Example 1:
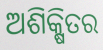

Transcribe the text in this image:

ଅଶିକ୍ଷିତର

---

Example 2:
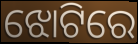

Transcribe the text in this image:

ଝୋଟିରେ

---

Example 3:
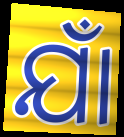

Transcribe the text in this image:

ଯାଁ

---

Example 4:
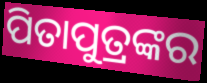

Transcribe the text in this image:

ପିତାପୁତ୍ରଙ୍କର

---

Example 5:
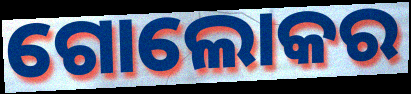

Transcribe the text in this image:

ଗୋଲୋକର